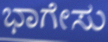
ಭಾಗೇಸು